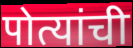
पोत्यांची